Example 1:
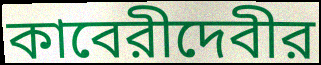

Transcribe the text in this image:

কাবেরীদেবীর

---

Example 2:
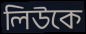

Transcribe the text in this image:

লিউকে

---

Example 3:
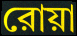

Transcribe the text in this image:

রোয়া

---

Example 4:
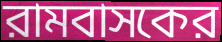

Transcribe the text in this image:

রামবাসকের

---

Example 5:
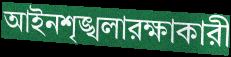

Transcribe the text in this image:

আইনশৃঙ্খলারক্ষাকারী